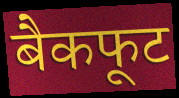
बैकफूट